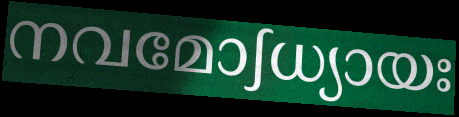
നവമോഽധ്യായഃ